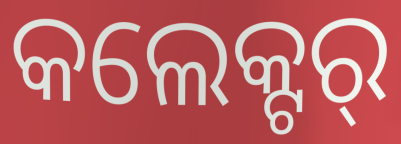
କଲେକ୍ଟର୍